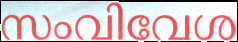
സംവിവേശ